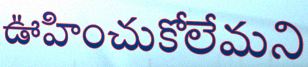
ఊహించుకోలేమని